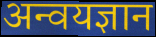
अन्वयज्ञान